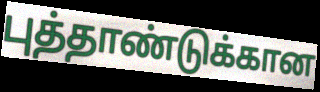
புத்தாண்டுக்கான